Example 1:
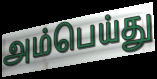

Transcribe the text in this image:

அம்பெய்து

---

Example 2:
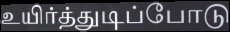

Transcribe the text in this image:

உயிர்த்துடிப்போடு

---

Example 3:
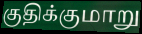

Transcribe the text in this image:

குதிக்குமாறு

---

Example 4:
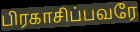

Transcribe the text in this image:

பிரகாசிப்பவரே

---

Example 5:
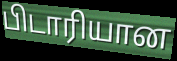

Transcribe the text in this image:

பிடாரியான